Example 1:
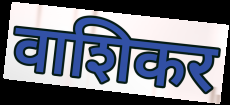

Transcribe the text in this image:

वाशिकर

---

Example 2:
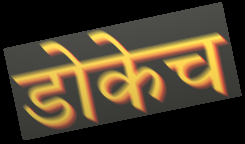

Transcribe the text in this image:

डोकेच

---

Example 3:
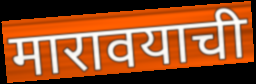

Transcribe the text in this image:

मारावयाची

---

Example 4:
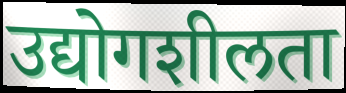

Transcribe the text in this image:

उद्योगशीलता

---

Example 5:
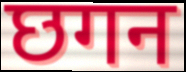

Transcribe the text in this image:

छगन